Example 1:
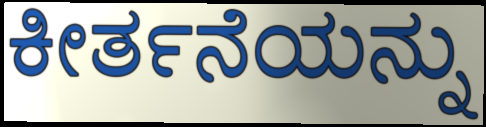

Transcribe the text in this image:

ಕೀರ್ತನೆಯನ್ನು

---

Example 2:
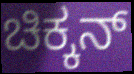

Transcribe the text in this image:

ಚಿಕ್ಕನ್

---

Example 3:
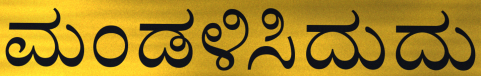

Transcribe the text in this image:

ಮಂಡಳಿಸಿದುದು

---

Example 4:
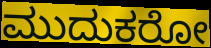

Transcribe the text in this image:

ಮುದುಕರೋ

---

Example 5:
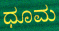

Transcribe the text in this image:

ಧೂಮ